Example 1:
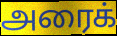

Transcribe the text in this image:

அரைக்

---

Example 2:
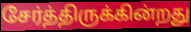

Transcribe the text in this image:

சேர்த்திருக்கின்றது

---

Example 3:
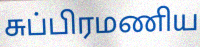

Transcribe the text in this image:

சுப்பிரமணிய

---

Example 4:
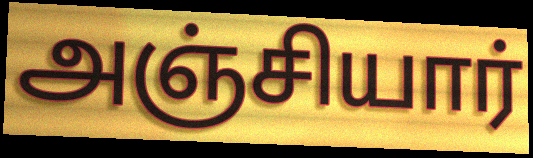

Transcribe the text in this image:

அஞ்சியார்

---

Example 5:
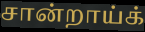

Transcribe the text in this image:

சான்றாய்க்